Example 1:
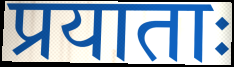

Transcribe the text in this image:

प्रयाताः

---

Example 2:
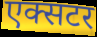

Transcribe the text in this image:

एक्सटर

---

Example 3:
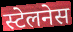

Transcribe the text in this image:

स्टेलनेस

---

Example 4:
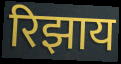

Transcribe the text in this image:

रिझाय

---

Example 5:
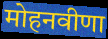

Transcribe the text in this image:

मोहनवीणा